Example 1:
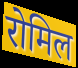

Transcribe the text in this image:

रोमिल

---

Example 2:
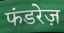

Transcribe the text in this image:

फंडरेज़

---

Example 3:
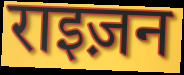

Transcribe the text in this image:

राइज़न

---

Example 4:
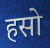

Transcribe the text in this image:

हसो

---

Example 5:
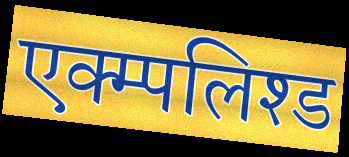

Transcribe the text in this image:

एक्म्पलिश्ड